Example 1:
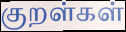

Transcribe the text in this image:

குறள்கள்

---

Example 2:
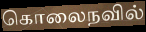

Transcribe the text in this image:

கொலைநவில்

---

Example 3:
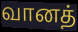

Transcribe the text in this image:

வானத்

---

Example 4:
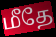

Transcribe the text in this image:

மீதே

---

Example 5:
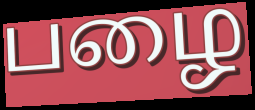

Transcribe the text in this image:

பழை